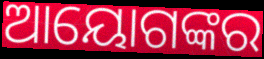
ଆୟୋଗଙ୍କର